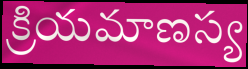
క్రియమాణస్య